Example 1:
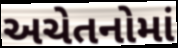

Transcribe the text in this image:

અચેતનોમાં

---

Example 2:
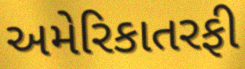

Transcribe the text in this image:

અમેરિકાતરફી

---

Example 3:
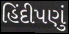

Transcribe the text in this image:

હિંદીપણું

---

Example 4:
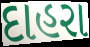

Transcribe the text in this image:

દાહરા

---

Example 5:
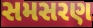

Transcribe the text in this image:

સમસરણ